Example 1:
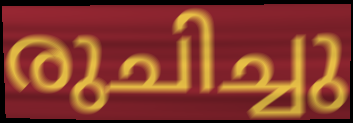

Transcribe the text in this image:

രുചിച്ചു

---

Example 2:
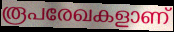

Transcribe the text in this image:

രൂപരേഖകളാണ്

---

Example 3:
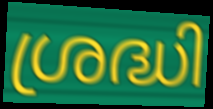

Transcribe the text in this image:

ശ്രദ്ധി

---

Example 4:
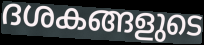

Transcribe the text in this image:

ദശകങ്ങളുടെ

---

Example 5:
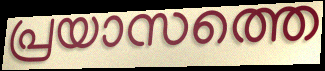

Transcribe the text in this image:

പ്രയാസത്തെ